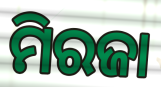
ମିରଜା